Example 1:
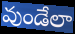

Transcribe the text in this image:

వుండేలా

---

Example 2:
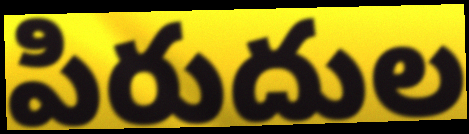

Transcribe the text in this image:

పిరుదుల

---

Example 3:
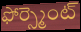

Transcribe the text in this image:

ఫోర్స్మెంట్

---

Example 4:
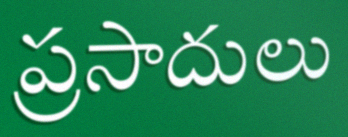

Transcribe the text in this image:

ప్రసాదులు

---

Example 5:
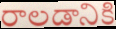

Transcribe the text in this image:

రాలడానికి